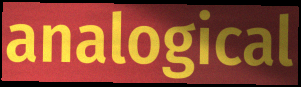
analogical